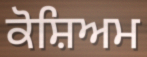
ਕੋਸ਼ਿਅਮ